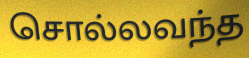
சொல்லவந்த